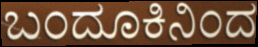
ಬಂದೂಕಿನಿಂದ